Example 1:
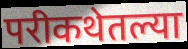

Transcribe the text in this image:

परीकथेतल्या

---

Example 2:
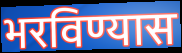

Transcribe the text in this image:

भरविण्यास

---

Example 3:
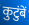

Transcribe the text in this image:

कुटुंबें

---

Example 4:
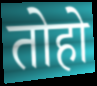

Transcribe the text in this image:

तोहो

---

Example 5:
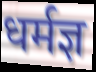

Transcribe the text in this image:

धर्मज्ञ